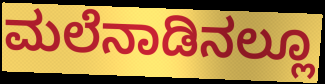
ಮಲೆನಾಡಿನಲ್ಲೂ